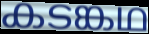
കടങ്കഥ